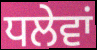
ਧਲੇਵਾਂ